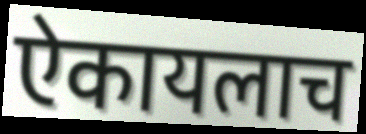
ऐकायलाच